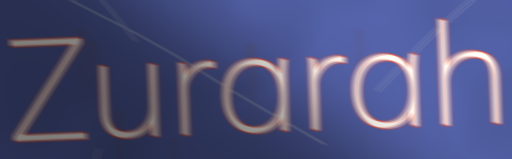
Zurarah